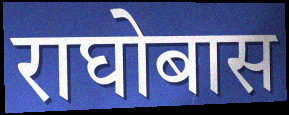
राघोबास